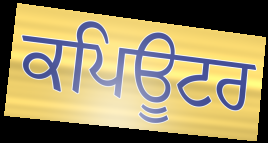
ਕਪਿਊਟਰ